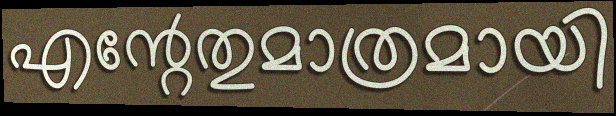
എന്റേതുമാത്രമായി